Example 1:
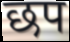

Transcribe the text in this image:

छप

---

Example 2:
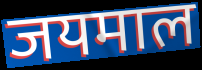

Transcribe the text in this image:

जयमाल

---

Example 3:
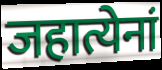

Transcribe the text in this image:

जहात्येनां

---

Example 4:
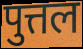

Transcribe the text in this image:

पुत्तल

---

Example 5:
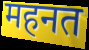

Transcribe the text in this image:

महनत